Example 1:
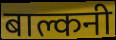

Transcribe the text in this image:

बाल्कनी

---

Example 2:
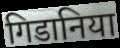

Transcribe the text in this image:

गिडानिया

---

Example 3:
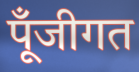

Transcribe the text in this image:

पूँजीगत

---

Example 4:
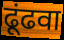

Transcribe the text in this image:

ढूंढवा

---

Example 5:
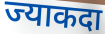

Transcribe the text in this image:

ज्याकदा